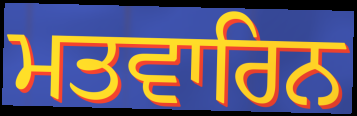
ਮਤਵਾਰਿਨ